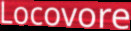
Locovore